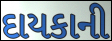
દાયકાની